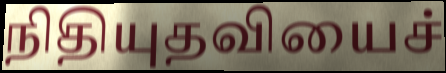
நிதியுதவியைச்